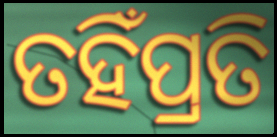
ତହିଁପ୍ରତି